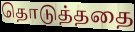
தொடுத்ததை